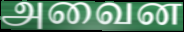
அவைன